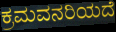
ಕ್ರಮವನರಿಯದೆ